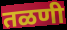
तळणी